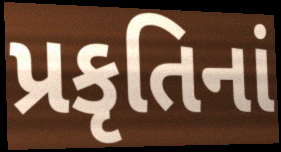
પ્રકૃતિનાં